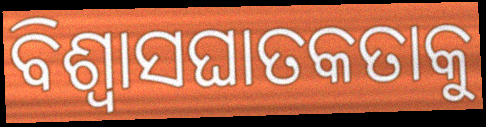
ବିଶ୍ୱାସଘାତକତାକୁ